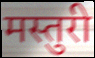
मस्तुरी